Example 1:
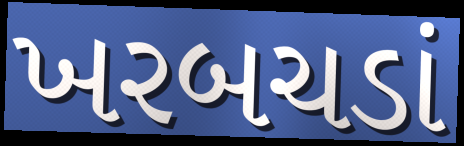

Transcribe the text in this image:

ખરબચડાં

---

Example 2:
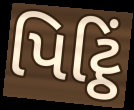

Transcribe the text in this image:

પિટ્ઠિં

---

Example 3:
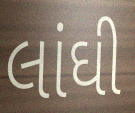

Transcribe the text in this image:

લાંઘી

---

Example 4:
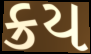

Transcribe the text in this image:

ક્રય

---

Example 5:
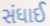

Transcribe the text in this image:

સંધાઈ